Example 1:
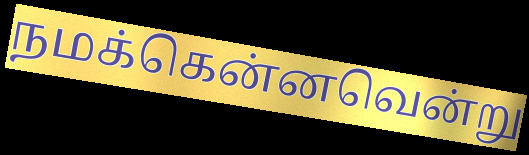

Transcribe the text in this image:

நமக்கென்னவென்று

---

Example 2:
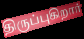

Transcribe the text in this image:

திருப்புகிறார்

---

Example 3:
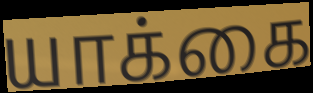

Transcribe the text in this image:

யாக்கை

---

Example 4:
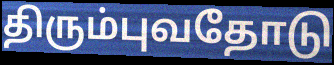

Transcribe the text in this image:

திரும்புவதோடு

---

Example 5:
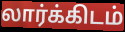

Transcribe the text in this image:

லார்க்கிடம்